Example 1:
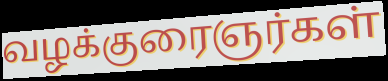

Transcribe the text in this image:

வழக்குரைஞர்கள்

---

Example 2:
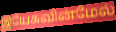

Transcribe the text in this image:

இயேசுவின்மேல்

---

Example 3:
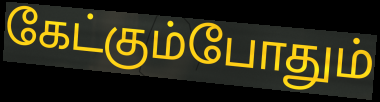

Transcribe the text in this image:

கேட்கும்போதும்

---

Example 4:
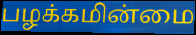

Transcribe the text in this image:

பழக்கமின்மை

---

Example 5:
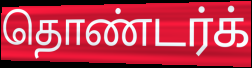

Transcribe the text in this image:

தொண்டர்க்